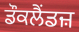
ਡੌਕਲੈਂਡਜ਼